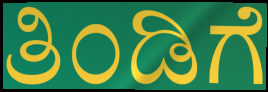
ತಿಂಡಿಗೆ